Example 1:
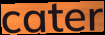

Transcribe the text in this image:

cater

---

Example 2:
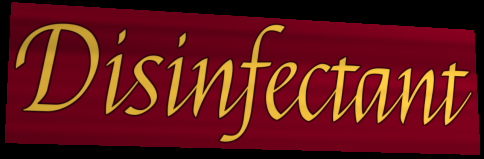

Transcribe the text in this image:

Disinfectant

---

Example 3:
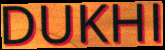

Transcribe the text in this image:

DUKHI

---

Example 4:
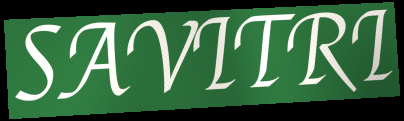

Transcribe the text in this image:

SAVITRI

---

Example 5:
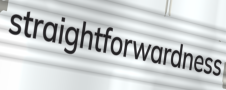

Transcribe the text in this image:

straightforwardness